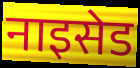
नाइसेड